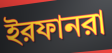
ইরফানরা